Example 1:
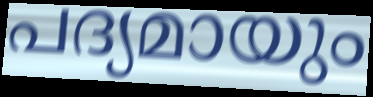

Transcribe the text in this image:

പദ്യമായും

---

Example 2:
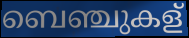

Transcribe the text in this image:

ബെഞ്ചുകള്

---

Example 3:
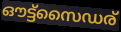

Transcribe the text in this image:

ഔട്ട്സൈഡര്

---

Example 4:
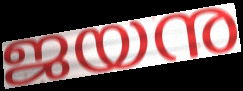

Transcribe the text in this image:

ജയനു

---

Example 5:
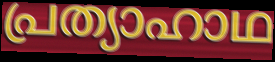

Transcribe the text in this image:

പ്രത്യാഹാഥ